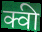
क्वी